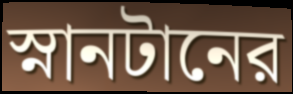
স্নানটানের